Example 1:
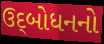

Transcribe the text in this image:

ઉદ્‌બોધનનો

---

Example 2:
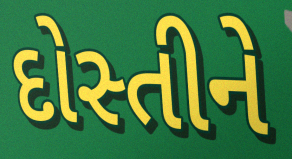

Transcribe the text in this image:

દોસ્તીને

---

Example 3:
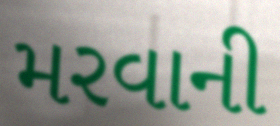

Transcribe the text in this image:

મરવાની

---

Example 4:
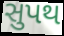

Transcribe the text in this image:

સુપથ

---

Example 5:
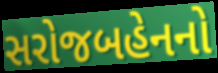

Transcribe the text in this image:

સરોજબહેનનો